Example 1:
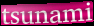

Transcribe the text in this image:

tsunami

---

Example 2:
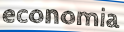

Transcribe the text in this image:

economia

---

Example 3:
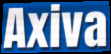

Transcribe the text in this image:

Axiva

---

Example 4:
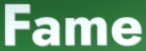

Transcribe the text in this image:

Fame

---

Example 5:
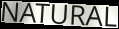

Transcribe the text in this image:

NATURAL